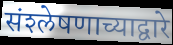
संश्लेषणाच्याद्वारे